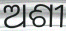
ଅଶୀ